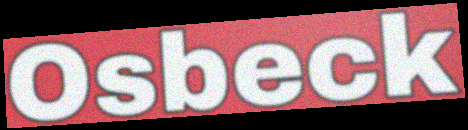
Osbeck